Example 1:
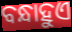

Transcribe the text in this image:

ବନ୍ଧାହୁଏ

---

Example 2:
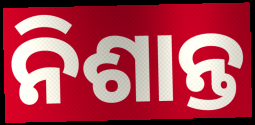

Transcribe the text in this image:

ନିଶାନ୍ତ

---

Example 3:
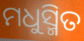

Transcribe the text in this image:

ମଧୁସ୍ମିତ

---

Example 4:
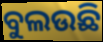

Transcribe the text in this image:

ବୁଲଉଛି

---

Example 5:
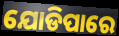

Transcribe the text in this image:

ଯୋଡିପାରେ